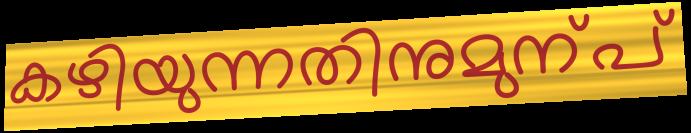
കഴിയുന്നതിനുമുന്പ്